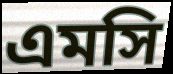
এমসি